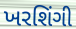
ખરશિંગી